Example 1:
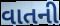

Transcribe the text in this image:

વાતની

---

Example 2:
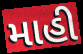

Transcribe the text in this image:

માહી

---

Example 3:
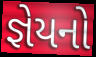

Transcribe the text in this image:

જ્ઞેયનો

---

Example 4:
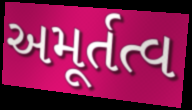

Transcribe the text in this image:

અમૂર્તત્વ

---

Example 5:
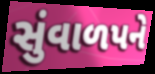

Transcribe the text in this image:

સુંવાળપને